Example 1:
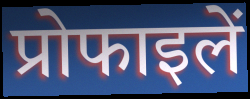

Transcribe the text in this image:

प्रोफाइलें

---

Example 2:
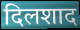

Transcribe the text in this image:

दिलशाद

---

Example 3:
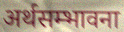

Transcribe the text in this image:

अर्थसम्भावना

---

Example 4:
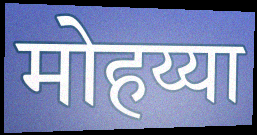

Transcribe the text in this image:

मोहय्या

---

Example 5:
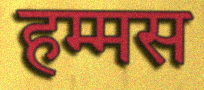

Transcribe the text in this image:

हम्मस